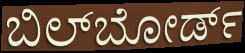
ಬಿಲ್‌ಬೋರ್ಡ್